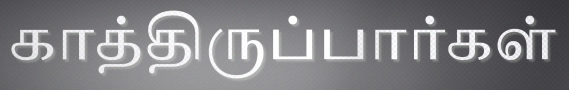
காத்திருப்பார்கள்